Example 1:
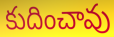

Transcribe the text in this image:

కుదించావు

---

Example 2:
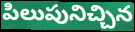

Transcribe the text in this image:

పిలుపునిచ్చిన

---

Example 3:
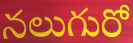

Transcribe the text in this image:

నలుగురో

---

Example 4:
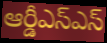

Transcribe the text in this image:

ఆర్డీఎస్ఎస్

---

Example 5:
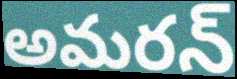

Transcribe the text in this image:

అమరన్